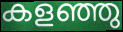
കളഞ്ഞു